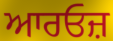
ਆਰਓਜ਼